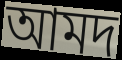
আমদ